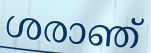
ശരാഞ്